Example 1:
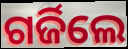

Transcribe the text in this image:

ଗର୍ଜିଲେ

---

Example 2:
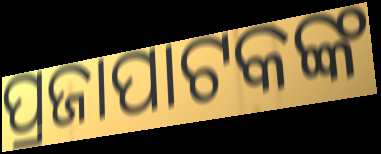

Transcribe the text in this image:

ପ୍ରଜାପାଟକଙ୍କ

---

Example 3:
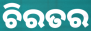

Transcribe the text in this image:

ଚିରତର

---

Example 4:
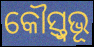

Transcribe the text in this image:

କୌସ୍ତ୍ୱଭୂ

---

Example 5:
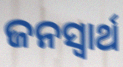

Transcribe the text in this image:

ଜନସ୍ଵାର୍ଥ